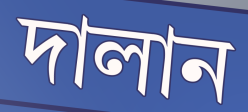
দালান